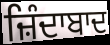
ਜ਼ਿੰਦਾਬਾਦ